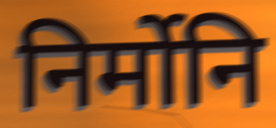
निर्मोनि